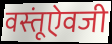
वस्तूंऐवजी